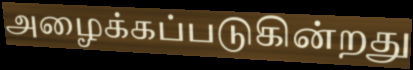
அழைக்கப்படுகின்றது